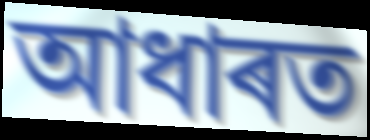
আধাৰত